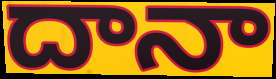
దానా